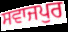
ਸਵਾਜਪੁਰ